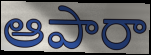
ఆపారా